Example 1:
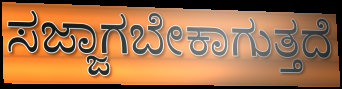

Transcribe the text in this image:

ಸಜ್ಜಾಗಬೇಕಾಗುತ್ತದೆ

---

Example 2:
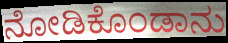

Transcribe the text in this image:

ನೋಡಿಕೊಂಡಾನು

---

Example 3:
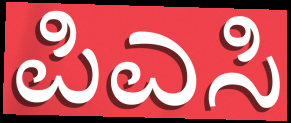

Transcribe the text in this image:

ಪಿಎಸಿ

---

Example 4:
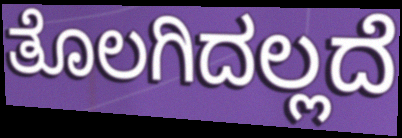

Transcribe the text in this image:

ತೊಲಗಿದಲ್ಲದೆ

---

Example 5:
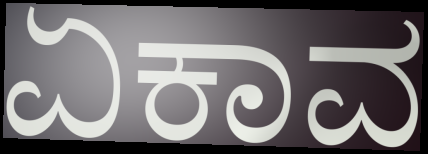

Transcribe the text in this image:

ಏಕಾವ